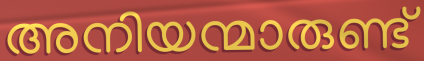
അനിയന്മാരുണ്ട്